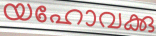
യഹോവക്കു